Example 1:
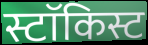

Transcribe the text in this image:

स्टॉकिस्ट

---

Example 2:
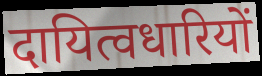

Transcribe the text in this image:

दायित्वधारियों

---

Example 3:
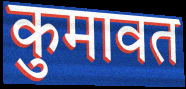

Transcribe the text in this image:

कुमावत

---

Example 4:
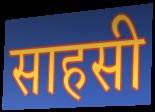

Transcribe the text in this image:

साहसी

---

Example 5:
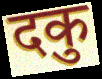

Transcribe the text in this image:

दकु